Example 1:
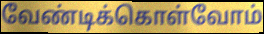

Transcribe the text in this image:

வேண்டிக்கொள்வோம்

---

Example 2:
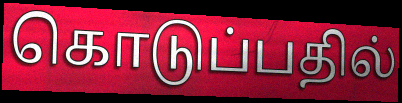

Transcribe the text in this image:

கொடுப்பதில்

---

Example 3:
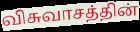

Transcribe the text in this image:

விசுவாசத்தின்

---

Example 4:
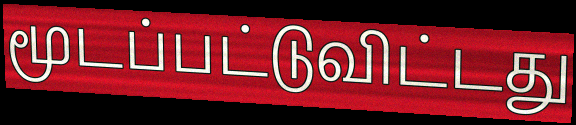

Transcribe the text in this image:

மூடப்பட்டுவிட்டது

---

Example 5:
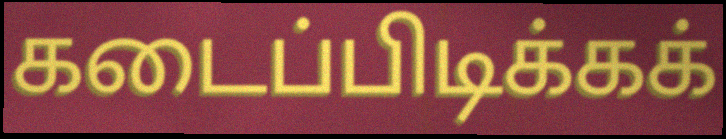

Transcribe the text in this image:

கடைப்பிடிக்கக்